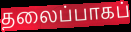
தலைப்பாகப்